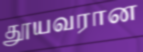
தூயவரான